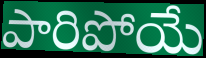
పారిపోయే